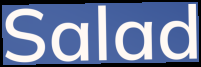
Salad